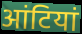
आंटियां